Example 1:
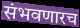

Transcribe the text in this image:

संभवणारच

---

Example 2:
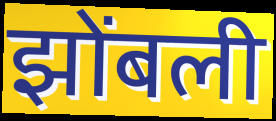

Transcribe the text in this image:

झोंबली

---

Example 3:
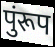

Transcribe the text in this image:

पुंरूप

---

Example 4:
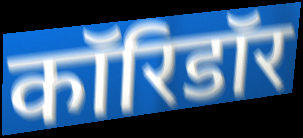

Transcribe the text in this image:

कॉरिडॉर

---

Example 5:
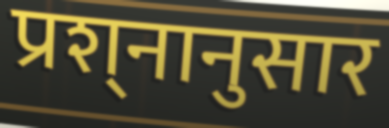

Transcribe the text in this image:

प्रश्नानुसार